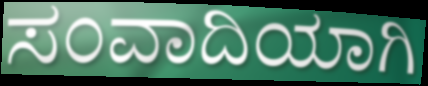
ಸಂವಾದಿಯಾಗಿ